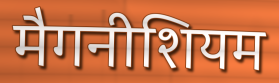
मैगनीशियम